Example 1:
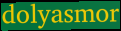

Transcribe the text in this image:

dolyasmor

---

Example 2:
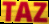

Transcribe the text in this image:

TAZ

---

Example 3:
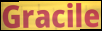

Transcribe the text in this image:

Gracile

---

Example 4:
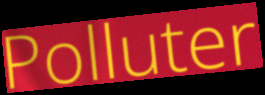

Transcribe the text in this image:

Polluter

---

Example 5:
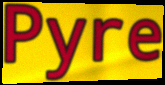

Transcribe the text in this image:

Pyre